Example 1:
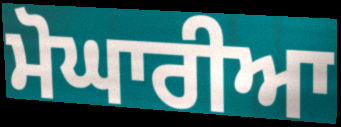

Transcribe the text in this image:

ਮੋਘਾਰੀਆ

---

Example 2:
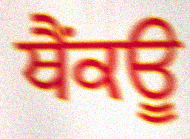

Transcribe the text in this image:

ਥੈਂਕਊ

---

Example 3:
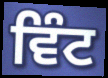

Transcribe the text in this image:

ਵਿੰਟ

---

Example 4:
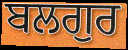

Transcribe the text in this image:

ਬਲਗੁਰ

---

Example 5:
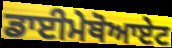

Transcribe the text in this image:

ਡਾਈਮੇਥੋਆਏਟ